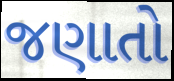
જણાતો